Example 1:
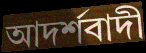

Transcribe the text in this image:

আদর্শবাদী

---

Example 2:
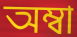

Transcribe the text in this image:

অম্বা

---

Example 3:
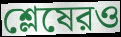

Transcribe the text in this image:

শ্লেষেরও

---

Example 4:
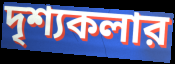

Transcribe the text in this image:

দৃশ্যকলার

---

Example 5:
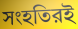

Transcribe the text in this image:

সংহতিরই